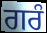
ਗਰੰ